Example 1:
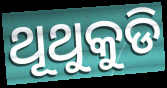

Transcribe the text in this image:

ଥୂଥୁକୁଡି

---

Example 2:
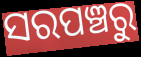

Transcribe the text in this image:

ସରପଞ୍ଚରୁ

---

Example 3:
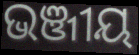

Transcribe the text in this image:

ଭଞ୍ଜୀୟ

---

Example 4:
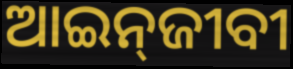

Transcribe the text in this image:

ଆଇନ୍‌ଜୀବୀ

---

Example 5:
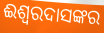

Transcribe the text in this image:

ଈଶ୍ଵରଦାସଙ୍କର